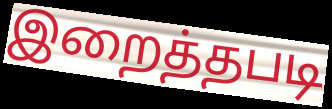
இறைத்தபடி